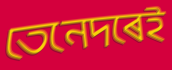
তেনেদৰেই